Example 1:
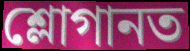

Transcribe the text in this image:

শ্লোগানত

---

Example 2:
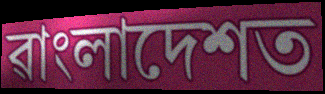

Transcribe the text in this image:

ৱাংলাদেশত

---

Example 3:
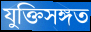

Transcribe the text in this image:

যুক্তিসঙ্গত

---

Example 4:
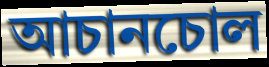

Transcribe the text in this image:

আচানচোল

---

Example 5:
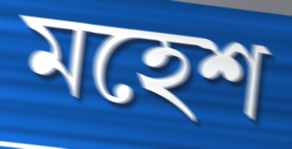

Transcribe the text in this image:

মহেশ